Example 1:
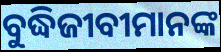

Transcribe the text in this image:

ବୁଦ୍ଧିଜୀବୀମାନଙ୍କ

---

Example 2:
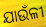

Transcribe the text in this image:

ଯାଉଁଳୀ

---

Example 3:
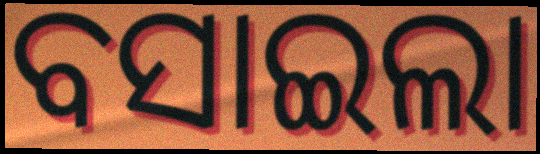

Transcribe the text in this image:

ବସାଇଲା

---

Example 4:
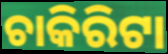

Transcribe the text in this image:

ଚାକିରିଟା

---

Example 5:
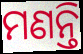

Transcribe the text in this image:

ମଣନ୍ତି